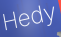
Hedy